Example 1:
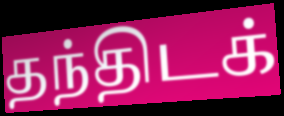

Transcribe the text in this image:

தந்திடக்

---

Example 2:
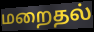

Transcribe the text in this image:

மறைதல்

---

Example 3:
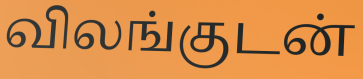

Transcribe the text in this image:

விலங்குடன்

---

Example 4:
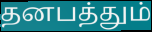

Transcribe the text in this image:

தனபத்தும்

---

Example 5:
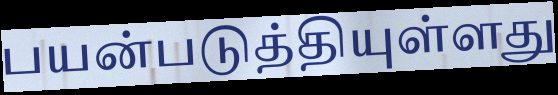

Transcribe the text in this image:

பயன்படுத்தியுள்ளது